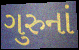
ગુરુનાં